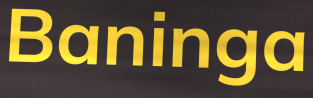
Baninga